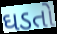
ઘડતો